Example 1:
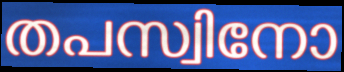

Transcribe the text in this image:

തപസ്വിനോ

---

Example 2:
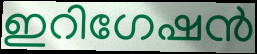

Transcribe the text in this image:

ഇറിഗേഷൻ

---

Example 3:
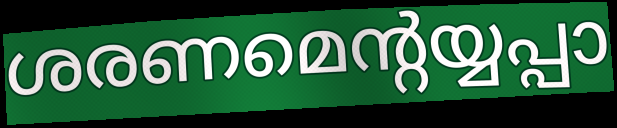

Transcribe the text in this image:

ശരണമെന്റയ്യപ്പാ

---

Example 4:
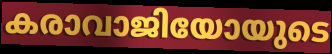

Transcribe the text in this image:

കരാവാജിയോയുടെ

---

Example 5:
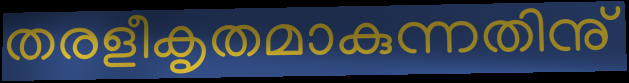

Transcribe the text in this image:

തരളീകൃതമാകുന്നതിനു്